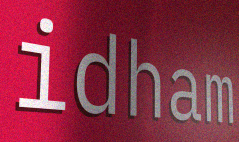
idham